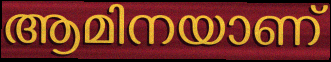
ആമിനയാണ്